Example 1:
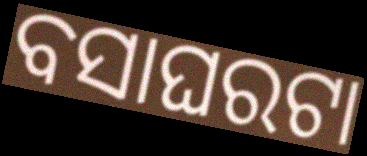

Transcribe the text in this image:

ବସାଘରଟା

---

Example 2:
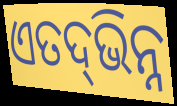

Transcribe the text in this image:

ଏତଦ୍‍ଭିନ୍ନ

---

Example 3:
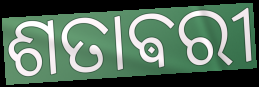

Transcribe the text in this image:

ଶତାଵରୀ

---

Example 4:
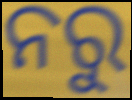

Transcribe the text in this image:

ନରୁ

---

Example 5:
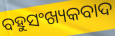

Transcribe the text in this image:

ବହୁସଂଖ୍ୟକବାଦ